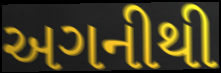
અગનીથી